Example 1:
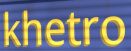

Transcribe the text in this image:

khetro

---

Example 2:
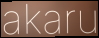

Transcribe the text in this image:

akaru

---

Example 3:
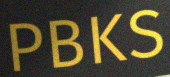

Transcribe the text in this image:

PBKS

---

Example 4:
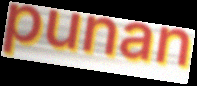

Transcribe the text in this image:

punan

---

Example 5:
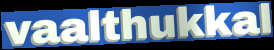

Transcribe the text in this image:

vaalthukkal